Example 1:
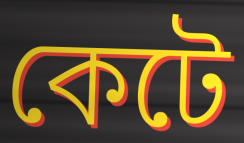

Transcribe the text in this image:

কেটে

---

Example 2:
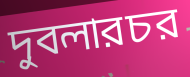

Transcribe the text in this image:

দুবলারচর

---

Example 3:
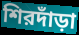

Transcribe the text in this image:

শিরদাঁড়া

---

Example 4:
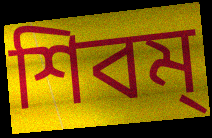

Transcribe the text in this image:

শিবম্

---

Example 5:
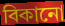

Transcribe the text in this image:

বিকানো